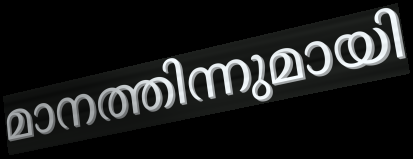
മാനത്തിന്നുമായി